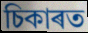
চিকাৰত